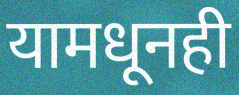
यामधूनही